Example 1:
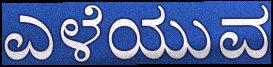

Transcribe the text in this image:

ಎಳೆಯುವ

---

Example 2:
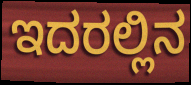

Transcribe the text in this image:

ಇದರಲ್ಲಿನ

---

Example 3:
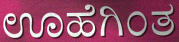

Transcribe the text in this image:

ಊಹೆಗಿಂತ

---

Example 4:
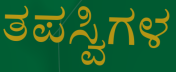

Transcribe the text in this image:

ತಪಸ್ವಿಗಳ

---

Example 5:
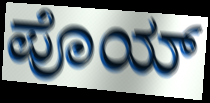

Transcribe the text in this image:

ಪೊಯ್